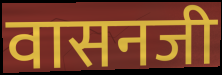
वासनजी